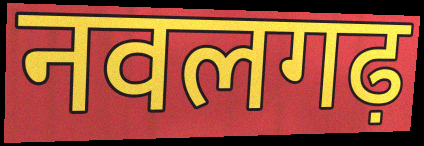
नवलगढ़